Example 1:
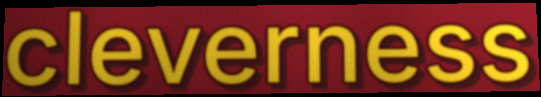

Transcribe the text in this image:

cleverness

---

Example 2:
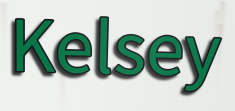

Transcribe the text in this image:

Kelsey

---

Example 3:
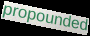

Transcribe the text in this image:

propounded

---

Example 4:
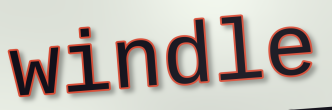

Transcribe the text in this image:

windle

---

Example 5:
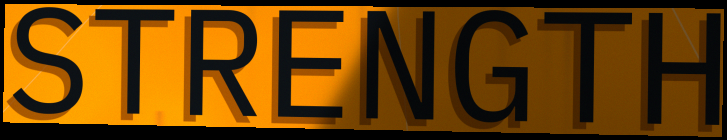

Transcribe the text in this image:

STRENGTH